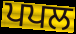
ਪਪਲ